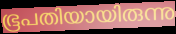
ഭൂപതിയായിരുന്നു